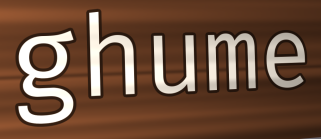
ghume